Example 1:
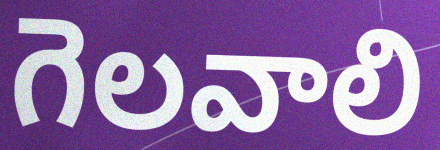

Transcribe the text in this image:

గెలవాలి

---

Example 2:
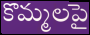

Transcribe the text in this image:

కొమ్మలపై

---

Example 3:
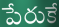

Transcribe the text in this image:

పేరుకే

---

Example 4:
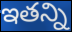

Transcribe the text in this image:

ఇతన్ని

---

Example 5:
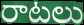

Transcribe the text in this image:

రాటలు